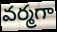
వర్మగా